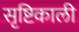
सृष्टिकाली